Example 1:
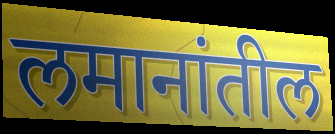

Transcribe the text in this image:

लमानांतील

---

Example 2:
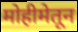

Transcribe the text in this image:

मोहीमेतून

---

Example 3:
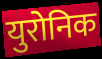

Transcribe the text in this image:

युरोनिक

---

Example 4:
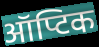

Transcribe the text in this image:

ऑप्टिक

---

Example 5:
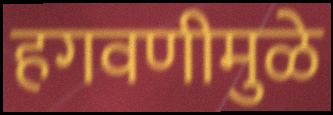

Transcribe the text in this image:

हगवणीमुळे